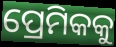
ପ୍ରେମିକକୁ